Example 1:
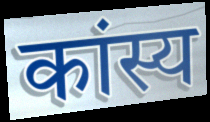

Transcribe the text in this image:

कांस्य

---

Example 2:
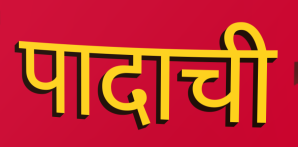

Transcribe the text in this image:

पादाची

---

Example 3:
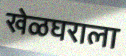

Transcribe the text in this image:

खेळघराला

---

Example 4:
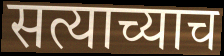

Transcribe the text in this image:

सत्याच्याच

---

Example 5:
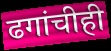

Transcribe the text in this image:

ढगांचीही